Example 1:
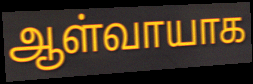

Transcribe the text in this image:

ஆள்வாயாக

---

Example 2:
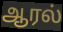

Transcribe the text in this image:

ஆரல்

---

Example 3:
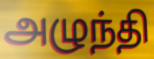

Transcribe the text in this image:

அழுந்தி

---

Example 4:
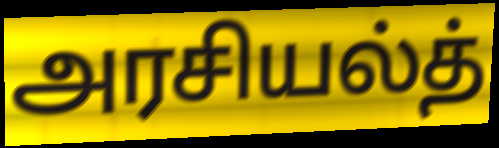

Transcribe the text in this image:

அரசியல்த்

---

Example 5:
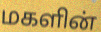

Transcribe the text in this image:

மகளின்